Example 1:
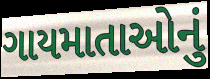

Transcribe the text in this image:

ગાયમાતાઓનું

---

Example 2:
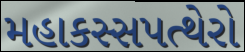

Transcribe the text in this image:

મહાકસ્સપત્થેરો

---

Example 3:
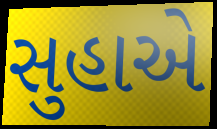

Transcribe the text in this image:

સુહાએ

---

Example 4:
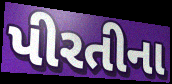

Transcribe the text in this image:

પીરતીના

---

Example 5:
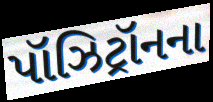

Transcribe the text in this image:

પૉઝિટ્રૉનના